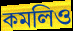
কমলিও